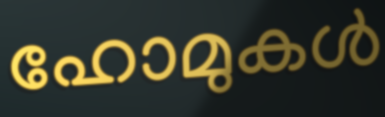
ഹോമുകൾ